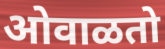
ओवाळतो